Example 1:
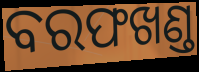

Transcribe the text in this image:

ବରଫଖଣ୍ଡ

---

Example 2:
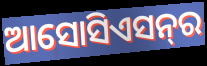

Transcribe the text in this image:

ଆସୋସିଏସନ୍‍ର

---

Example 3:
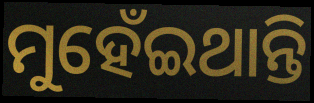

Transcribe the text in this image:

ମୁହେଁଇଥାନ୍ତି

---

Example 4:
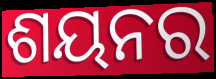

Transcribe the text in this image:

ଶୟନର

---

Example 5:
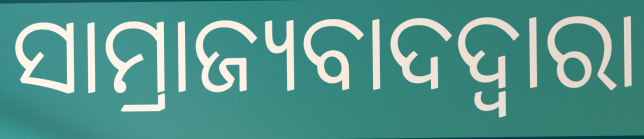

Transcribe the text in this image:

ସାମ୍ରାଜ୍ୟବାଦଦ୍ୱାରା